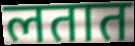
लतात